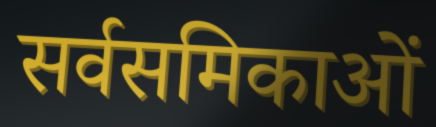
सर्वसमिकाओं